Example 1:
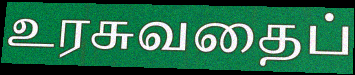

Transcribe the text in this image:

உரசுவதைப்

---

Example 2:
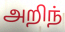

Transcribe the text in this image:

அறிந்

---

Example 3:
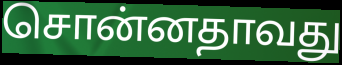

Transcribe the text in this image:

சொன்னதாவது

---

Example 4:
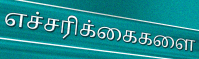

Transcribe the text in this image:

எச்சரிக்கைகளை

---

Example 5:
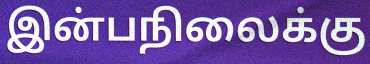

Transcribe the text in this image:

இன்பநிலைக்கு